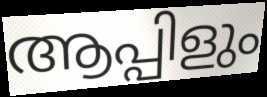
ആപ്പിളും